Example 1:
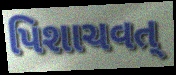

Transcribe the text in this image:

પિશાચવત્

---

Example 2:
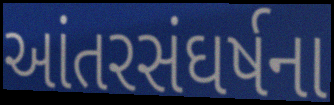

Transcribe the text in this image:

આંતરસંઘર્ષના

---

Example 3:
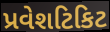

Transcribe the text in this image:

પ્રવેશટિકિટ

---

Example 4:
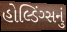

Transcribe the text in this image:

હોલ્ડિંગ્સનું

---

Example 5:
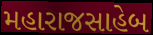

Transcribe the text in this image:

મહારાજસાહેબ